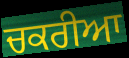
ਚਕਰੀਆ